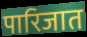
पारिजात